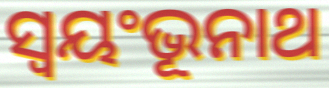
ସ୍ଵୟଂଭୂନାଥ